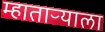
म्हाताऱ्याला